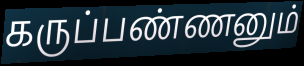
கருப்பண்ணனும்